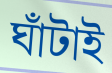
ঘাঁটাই